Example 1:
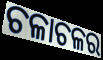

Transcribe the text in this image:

ଚଳାଚଳର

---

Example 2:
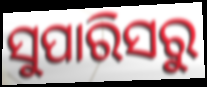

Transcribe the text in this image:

ସୁପାରିସରୁ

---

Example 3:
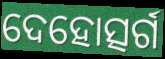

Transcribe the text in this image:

ଦେହୋତ୍ସର୍ଗ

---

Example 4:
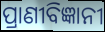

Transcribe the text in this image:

ପ୍ରାଣୀବିଜ୍ଞାନୀ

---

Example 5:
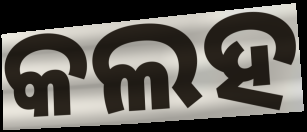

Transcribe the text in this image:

କଲହ